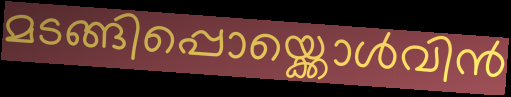
മടങ്ങിപ്പൊയ്ക്കൊൾവിൻ